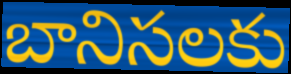
బానిసలకు